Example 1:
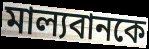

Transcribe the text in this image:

মাল্যবানকে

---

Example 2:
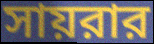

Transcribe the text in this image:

সায়রার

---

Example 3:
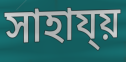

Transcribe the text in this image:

সাহায্য়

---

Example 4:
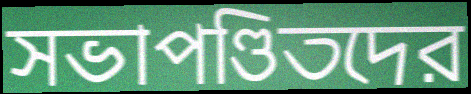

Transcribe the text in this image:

সভাপণ্ডিতদের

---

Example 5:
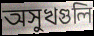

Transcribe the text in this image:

অসুখগুলি